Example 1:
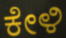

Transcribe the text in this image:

ಕೇಳಿ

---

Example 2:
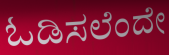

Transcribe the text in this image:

ಓಡಿಸಲೆಂದೇ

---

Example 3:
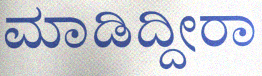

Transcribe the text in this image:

ಮಾಡಿದ್ದೀರಾ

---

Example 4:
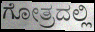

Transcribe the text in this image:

ಗೋತ್ರದಲ್ಲಿ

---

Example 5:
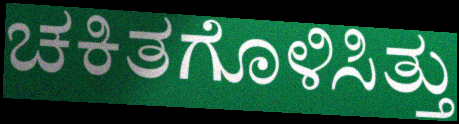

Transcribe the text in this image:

ಚಕಿತಗೊಳಿಸಿತ್ತು